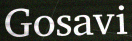
Gosavi